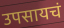
उपसायचं